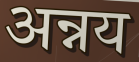
अन्नय